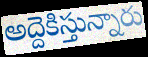
అద్దెకిస్తున్నారు